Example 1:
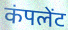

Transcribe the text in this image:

कंपलेंट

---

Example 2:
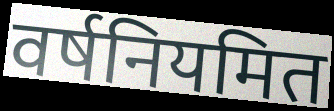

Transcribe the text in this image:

वर्षनियमित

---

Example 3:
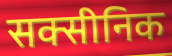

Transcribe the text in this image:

सक्सीनिक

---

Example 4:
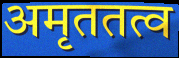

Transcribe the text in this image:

अमृततत्व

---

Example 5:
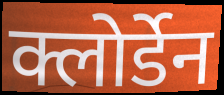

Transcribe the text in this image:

क्लोर्डेन